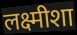
लक्ष्मीशा